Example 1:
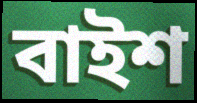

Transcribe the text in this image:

বাইশ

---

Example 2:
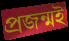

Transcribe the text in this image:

প্ৰজন্মই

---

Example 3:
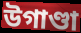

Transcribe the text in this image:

উগাণ্ডা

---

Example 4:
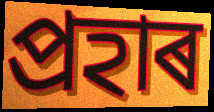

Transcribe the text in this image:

প্ৰহাৰ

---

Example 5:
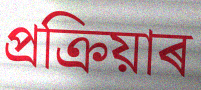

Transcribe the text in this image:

প্ৰক্ৰিয়াৰ